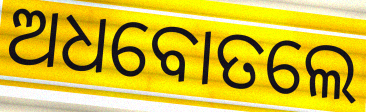
ଅଧବୋତଲେ